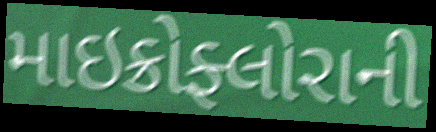
માઇક્રોફ્લોરાની